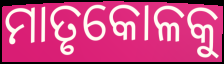
ମାତୃକୋଳକୁ